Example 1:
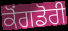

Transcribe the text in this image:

ਕੋਂਗਡੋਰੀ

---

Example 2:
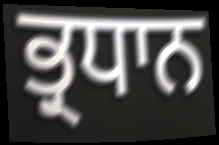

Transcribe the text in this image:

ਭ੍ਰਧਾਨ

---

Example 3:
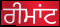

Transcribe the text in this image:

ਰੀਮਾਂਟ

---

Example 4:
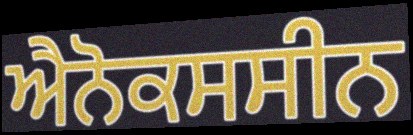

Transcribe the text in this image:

ਐਨੋਕਸਸੀਨ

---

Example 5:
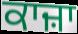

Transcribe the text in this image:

ਕਾਜ਼ਾ